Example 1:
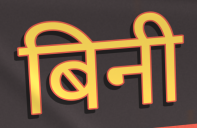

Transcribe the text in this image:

बिनी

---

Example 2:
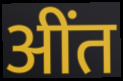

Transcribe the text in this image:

अींत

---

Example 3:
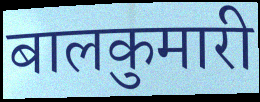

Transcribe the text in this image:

बालकुमारी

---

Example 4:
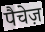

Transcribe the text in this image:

पैचेज़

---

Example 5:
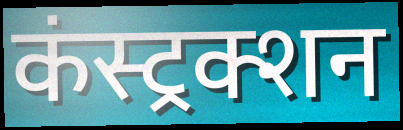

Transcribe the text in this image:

कंस्ट्रक्शन